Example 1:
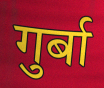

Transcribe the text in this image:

गुर्बा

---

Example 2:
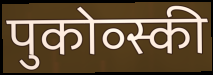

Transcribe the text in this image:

पुकोव्स्की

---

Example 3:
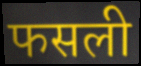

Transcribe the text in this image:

फसली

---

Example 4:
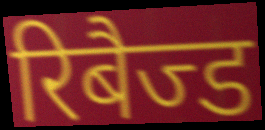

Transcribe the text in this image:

रिबैज्ड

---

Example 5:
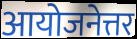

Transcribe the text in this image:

आयोजनेत्तर